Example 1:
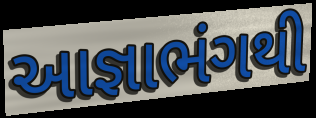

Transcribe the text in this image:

આજ્ઞાભંગથી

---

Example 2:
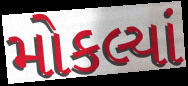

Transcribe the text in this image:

મોકલ્યાં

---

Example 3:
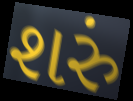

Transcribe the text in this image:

શરું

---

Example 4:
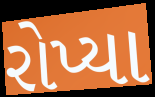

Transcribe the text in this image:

રોપ્યા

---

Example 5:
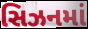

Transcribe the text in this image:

સિઝનમાં